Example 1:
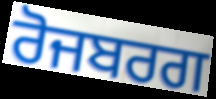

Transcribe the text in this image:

ਰੋਜਬਰਗ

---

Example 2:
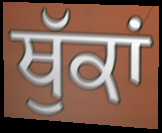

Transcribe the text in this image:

ਥੁੱਕਾਂ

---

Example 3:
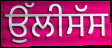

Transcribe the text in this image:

ਉੱਲੀਸੱਸ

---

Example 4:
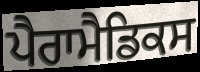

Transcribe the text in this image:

ਪੈਰਾਮੈਡਿਕਸ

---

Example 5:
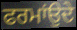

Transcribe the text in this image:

ਫਰਮਾਂਉਦੇ